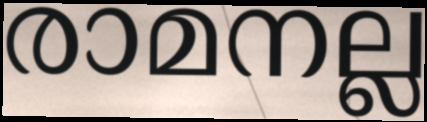
രാമനല്ല